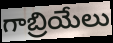
గాబ్రియేలు